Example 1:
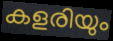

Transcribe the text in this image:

കളരിയും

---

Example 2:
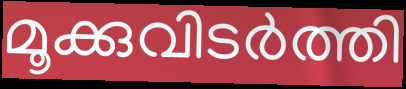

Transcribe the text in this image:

മൂക്കുവിടർത്തി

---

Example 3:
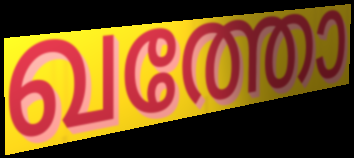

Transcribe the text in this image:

ഖത്തോ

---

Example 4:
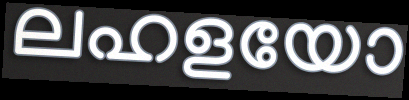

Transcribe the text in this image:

ലഹളയോ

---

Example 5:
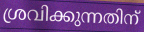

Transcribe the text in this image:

ശ്രവിക്കുന്നതിന്